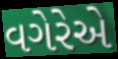
વગેરેએ